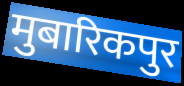
मुबारिकपुर